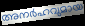
അനർഹവുമായ